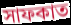
সাফকাত